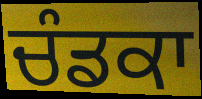
ਚੰਡਕਾ